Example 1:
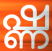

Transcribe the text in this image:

ഷ്ണ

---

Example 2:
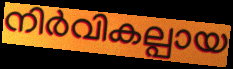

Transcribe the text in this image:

നിർവികല്പായ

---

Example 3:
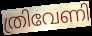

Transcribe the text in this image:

ത്രിവേണി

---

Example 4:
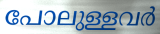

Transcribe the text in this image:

പോലുള്ളവർ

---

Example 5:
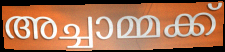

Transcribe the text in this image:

അച്ചാമ്മക്ക്